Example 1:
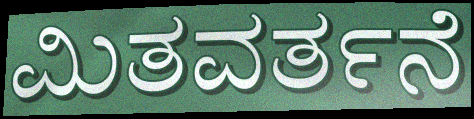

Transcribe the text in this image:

ಮಿತವರ್ತನೆ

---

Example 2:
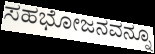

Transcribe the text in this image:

ಸಹಭೋಜನವನ್ನೂ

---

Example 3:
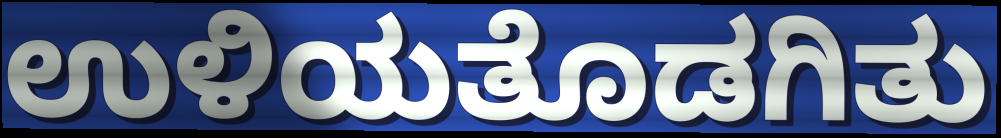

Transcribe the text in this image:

ಉಳಿಯತೊಡಗಿತು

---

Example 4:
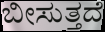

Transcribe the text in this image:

ಬೀಸುತ್ತದೆ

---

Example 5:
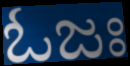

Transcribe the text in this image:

ಓಜಃ